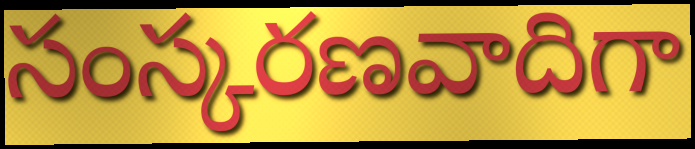
సంస్కరణవాదిగా